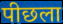
पीछला